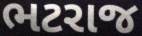
ભટરાજ